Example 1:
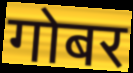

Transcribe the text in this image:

गोबर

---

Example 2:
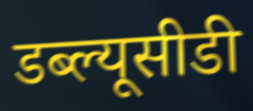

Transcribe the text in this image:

डब्ल्यूसीडी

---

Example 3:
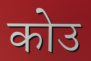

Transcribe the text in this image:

कोउ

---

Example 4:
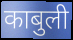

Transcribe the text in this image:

काबुली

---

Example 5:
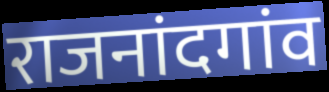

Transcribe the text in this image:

राजनांदगांव